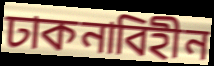
ঢাকনাবিহীন